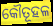
କୌତୂହଳ